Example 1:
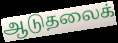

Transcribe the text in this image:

ஆடுதலைக்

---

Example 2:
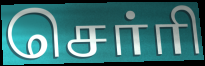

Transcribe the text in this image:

செர்ரி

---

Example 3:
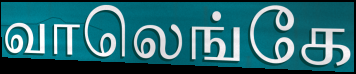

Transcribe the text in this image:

வாலெங்கே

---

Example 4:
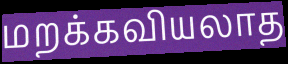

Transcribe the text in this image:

மறக்கவியலாத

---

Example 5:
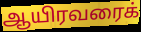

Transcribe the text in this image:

ஆயிரவரைக்